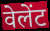
वेलेंट